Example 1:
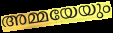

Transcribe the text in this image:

അമ്മയേയും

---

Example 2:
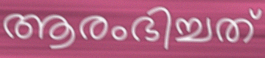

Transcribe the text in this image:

ആരംഭിച്ചത്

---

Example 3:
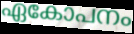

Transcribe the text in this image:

ഏകോപനം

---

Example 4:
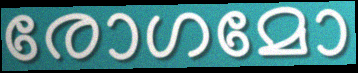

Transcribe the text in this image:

രോഗമോ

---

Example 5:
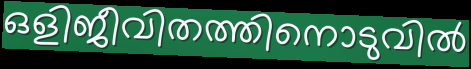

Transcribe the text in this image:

ഒളിജീവിതത്തിനൊടുവിൽ